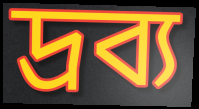
দ্রব্য